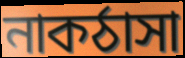
নাকঠাসা